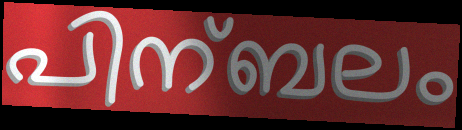
പിന്ബലം